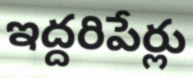
ఇద్దరిపేర్లు